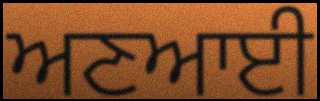
ਅਣਆਈ